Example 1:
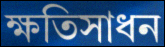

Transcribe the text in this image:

ক্ষতিসাধন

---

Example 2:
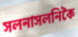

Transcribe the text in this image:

সলনাসলনিকৈ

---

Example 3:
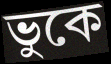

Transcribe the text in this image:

ভুকে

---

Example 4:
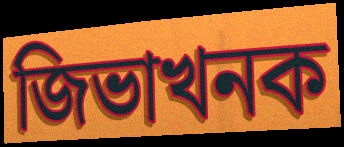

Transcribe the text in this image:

জিভাখনক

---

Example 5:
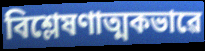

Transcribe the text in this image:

বিশ্লেষণাত্মকভাৱে